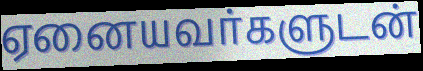
ஏனையவர்களுடன்